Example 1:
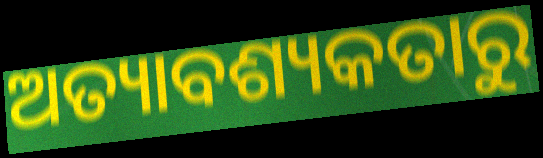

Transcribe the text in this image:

ଅତ୍ୟାବଶ୍ୟକତାରୁ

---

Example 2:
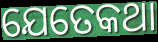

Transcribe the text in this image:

ଯେତେକଥା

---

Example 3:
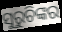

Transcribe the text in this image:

ସୁରୁଚିଙ୍କର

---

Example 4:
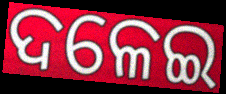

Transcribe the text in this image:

ଦଳେଇ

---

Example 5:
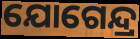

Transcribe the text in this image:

ଯୋଗେନ୍ଦ୍ର